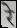
रे